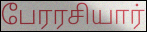
பேரரசியார்